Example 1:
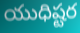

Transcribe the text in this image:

యుధిష్టర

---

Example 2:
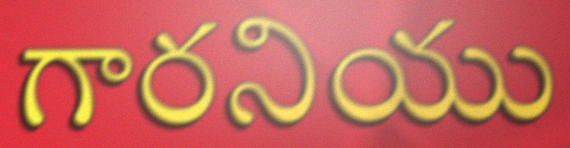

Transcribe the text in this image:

గారనియు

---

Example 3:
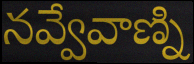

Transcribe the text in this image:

నవ్వేవాణ్ని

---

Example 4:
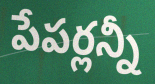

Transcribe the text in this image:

పేపర్లన్నీ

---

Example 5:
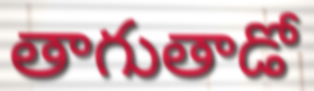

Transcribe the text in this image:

తాగుతాడో